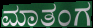
ಮಾತಂಗ